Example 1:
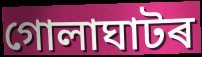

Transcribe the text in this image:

গোলাঘাটৰ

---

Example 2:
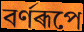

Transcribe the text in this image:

বৰ্ণৰূপে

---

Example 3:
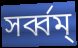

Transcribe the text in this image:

সৰ্ব্বম্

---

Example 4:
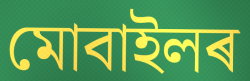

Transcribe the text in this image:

মোবাইলৰ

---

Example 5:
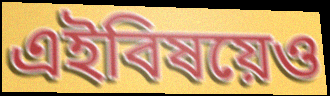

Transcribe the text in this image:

এইবিষয়েও